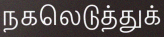
நகலெடுத்துக்